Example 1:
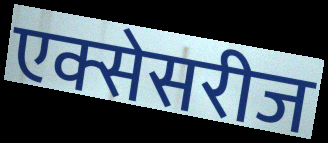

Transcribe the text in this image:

एक्सेसरीज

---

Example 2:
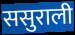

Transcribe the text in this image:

ससुराली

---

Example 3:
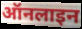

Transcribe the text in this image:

ऑनलाइन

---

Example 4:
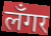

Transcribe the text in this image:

लँगर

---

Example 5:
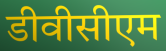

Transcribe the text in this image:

डीवीसीएम